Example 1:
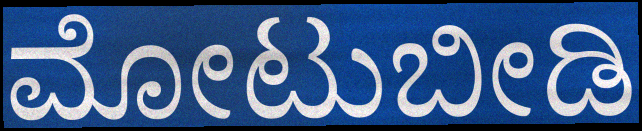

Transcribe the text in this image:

ಮೋಟುಬೀಡಿ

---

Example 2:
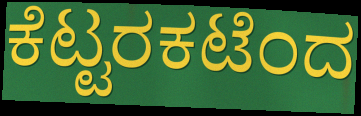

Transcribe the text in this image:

ಕೆಟ್ಟರಕಟೆಂದ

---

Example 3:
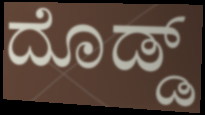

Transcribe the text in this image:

ದೊಡ್ಡ್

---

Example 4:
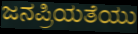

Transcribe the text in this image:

ಜನಪ್ರಿಯತೆಯು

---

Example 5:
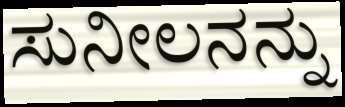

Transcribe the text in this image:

ಸುನೀಲನನ್ನು